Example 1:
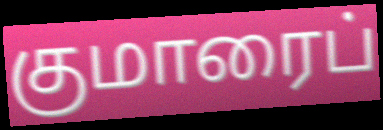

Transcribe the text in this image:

குமாரைப்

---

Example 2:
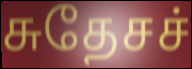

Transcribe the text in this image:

சுதேசச்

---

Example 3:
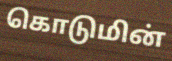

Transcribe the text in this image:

கொடுமின்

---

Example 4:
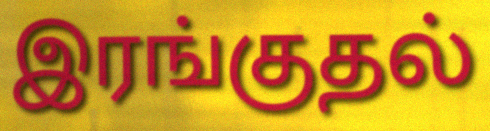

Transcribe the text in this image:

இரங்குதல்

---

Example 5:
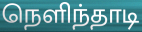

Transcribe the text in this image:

நெளிந்தாடி